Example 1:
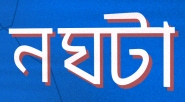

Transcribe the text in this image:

নঘটা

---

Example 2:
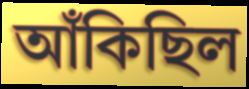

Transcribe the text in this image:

আঁকিছিল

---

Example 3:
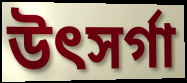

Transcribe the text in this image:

উৎসৰ্গা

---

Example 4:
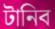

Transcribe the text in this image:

টানিব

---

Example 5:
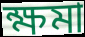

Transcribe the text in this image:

ক্ষমা